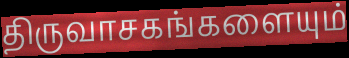
திருவாசகங்களையும்